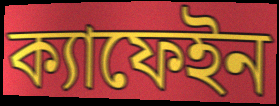
ক্যাফেইন